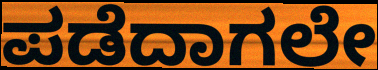
ಪಡೆದಾಗಲೇ